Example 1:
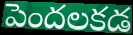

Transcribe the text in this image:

పెందలకడ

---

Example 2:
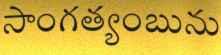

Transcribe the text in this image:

సాంగత్యంబును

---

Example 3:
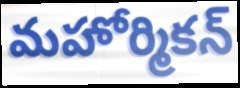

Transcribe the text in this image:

మహోర్మికన్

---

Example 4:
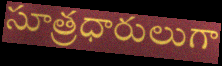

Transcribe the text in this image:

సూత్రధారులుగా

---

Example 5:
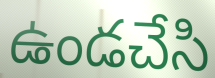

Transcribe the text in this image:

ఉండచేసి